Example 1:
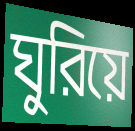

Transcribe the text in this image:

ঘুরিয়ে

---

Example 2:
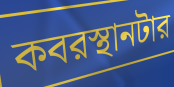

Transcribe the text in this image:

কবরস্থানটার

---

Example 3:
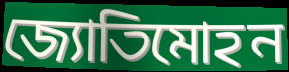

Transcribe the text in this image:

জ্যোতিমোহন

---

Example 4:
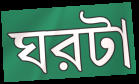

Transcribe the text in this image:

ঘরটা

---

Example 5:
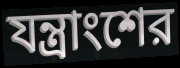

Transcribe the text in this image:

যন্ত্রাংশের